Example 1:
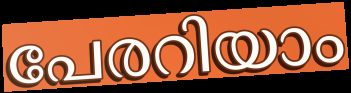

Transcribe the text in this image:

പേരറിയാം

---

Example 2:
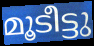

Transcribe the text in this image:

മൂടീട്ടു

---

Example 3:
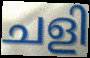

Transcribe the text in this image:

ചളി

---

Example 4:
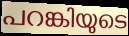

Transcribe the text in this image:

പറങ്കിയുടെ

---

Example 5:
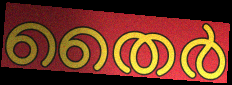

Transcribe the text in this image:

തൈർ